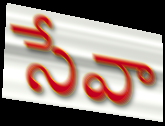
సేవా